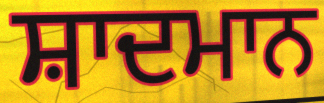
ਸ਼ਾਦਮਾਨ